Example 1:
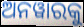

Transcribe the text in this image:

ଅନୱାରକୁ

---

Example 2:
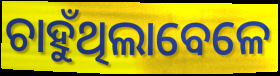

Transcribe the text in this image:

ଚାହୁଁଥିଲାବେଳେ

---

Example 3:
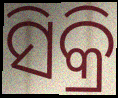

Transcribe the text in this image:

ସିକ୍ରି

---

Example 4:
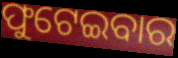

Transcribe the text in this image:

ଫୁଟେଇବାର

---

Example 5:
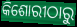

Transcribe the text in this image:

କିଶୋରୀଠାରୁ